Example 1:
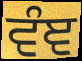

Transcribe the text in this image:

ਵੰਞ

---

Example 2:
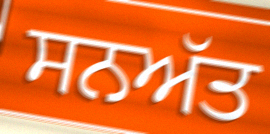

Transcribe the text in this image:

ਸਨਅੱਤ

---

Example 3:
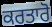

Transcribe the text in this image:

ਕਰਤਾਰੋ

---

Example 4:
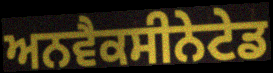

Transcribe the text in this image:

ਅਨਵੈਕਸੀਨੇਟੇਡ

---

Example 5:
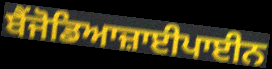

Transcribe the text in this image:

ਬੈਂਜੋਡਿਆਜ਼ਾਈਪਾਈਨ